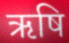
ऋषि